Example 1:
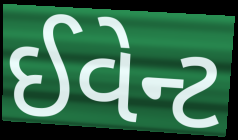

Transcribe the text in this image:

ઈવેન્ટ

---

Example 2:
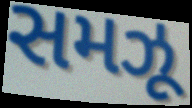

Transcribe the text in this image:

સમઝૂ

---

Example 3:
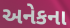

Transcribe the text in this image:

અનેકના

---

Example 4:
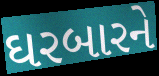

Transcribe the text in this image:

ઘરબારને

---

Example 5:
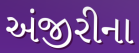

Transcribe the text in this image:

અંજીરીના